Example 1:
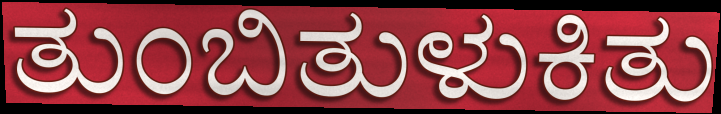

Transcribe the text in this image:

ತುಂಬಿತುಳುಕಿತು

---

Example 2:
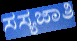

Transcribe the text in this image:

ಸಸ್ಯಜಾತಿ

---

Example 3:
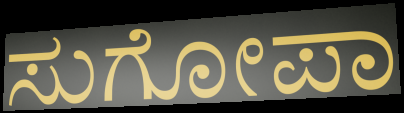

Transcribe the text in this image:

ಸುಗೋಪಾ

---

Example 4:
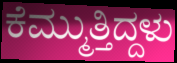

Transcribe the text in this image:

ಕೆಮ್ಮುತ್ತಿದ್ದಳು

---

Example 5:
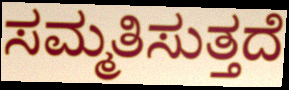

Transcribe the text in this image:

ಸಮ್ಮತಿಸುತ್ತದೆ